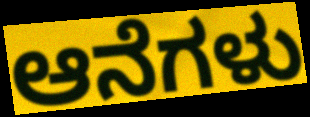
ಆನೆಗಳು